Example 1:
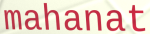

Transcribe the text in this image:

mahanat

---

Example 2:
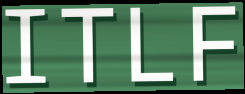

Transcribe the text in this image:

ITLF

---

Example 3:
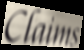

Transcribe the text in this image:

Claims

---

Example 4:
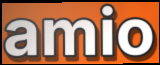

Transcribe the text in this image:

amio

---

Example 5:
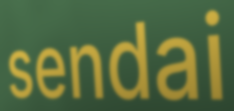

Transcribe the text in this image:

sendai